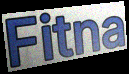
Fitna